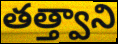
తత్త్వాని